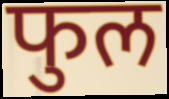
फुल